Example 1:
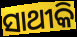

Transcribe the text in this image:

ସାଥୀକି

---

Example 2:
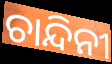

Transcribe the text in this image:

ଚାନ୍ଦିନୀ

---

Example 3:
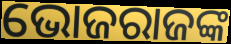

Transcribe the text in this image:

ଭୋଜରାଜଙ୍କ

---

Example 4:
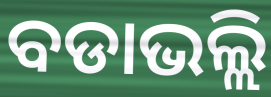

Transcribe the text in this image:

ବଡାଭଲ୍ଲି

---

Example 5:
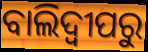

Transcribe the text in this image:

ବାଲିଦ୍ୱୀପରୁ